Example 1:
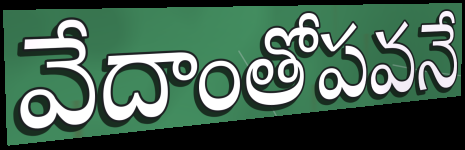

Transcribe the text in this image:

వేదాంతోపవనే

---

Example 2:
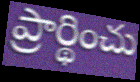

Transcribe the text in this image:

ప్రార్థించు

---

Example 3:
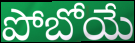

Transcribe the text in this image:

పోబోయే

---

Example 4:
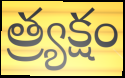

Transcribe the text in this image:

త్ర్యక్షం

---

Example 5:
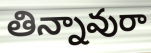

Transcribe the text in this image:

తిన్నావురా